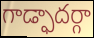
గాడ్ఫాదర్గా